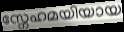
സ്നേഹമയിയായ